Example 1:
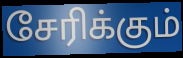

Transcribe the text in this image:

சேரிக்கும்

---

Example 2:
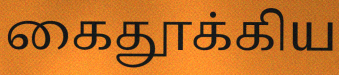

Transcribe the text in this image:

கைதூக்கிய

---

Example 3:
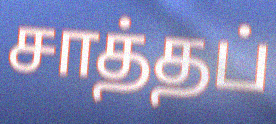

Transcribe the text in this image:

சாத்தப்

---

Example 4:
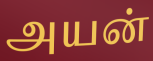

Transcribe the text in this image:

அயன்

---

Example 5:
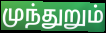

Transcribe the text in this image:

முந்துறும்